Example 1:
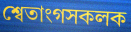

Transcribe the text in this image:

শ্বেতাংগসকলক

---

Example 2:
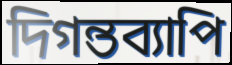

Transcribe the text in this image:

দিগন্তব্যাপি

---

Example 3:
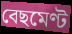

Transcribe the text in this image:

বেছমেণ্ট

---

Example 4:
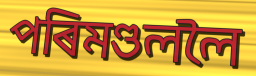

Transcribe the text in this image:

পৰিমণ্ডললৈ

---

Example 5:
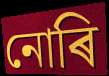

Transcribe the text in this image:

নোৰি